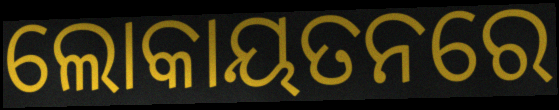
ଲୋକାୟତନରେ